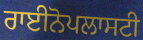
ਰਾਈਨੋਪਲਾਸਟੀ